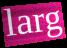
larg